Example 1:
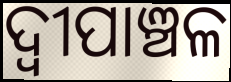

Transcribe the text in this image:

ଦ୍ୱୀପାଞ୍ଚଳ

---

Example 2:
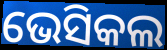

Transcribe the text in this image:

ଭେସିକଲ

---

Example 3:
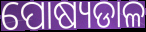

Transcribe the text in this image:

ପୋଷ୍ୟଡାଳ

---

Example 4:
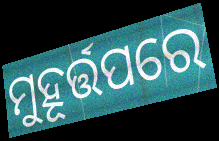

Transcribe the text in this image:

ମୁହୂର୍ତ୍ତପରେ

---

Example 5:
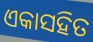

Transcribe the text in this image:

ଏକାସହିତ